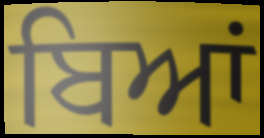
ਬਿਆਂ